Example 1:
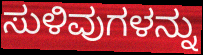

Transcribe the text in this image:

ಸುಳಿವುಗಳನ್ನು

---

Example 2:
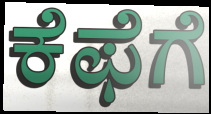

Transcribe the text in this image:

ಕೆಫೆಗೆ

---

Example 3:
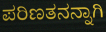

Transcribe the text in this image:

ಪರಿಣತನನ್ನಾಗಿ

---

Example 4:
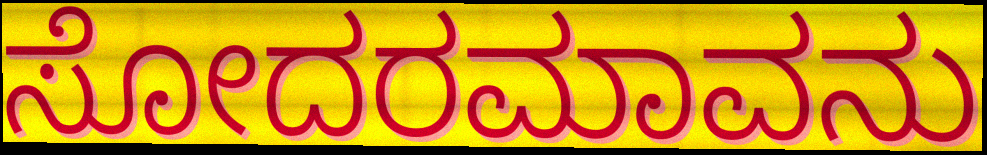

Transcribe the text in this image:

ಸೋದರಮಾವನು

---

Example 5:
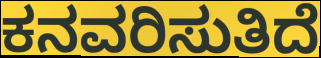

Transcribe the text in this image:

ಕನವರಿಸುತಿದೆ